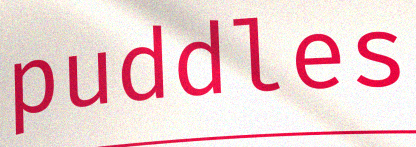
puddles